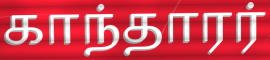
காந்தாரர்